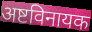
अष्टविनायक